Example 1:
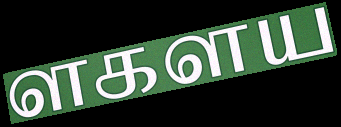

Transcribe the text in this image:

ளகளய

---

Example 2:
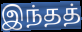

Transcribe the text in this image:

இந்தத்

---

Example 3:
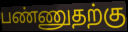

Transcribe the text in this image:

பண்ணுதற்கு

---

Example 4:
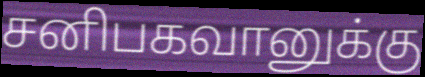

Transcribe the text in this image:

சனிபகவானுக்கு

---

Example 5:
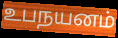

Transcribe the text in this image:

உபநயனம்